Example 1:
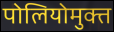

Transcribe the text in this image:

पोलियोमुक्त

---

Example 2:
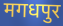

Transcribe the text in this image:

मगधपुर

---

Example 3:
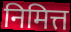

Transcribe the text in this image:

निमित्त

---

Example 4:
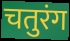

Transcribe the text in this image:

चतुरंग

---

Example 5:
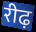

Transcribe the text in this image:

रीढ़